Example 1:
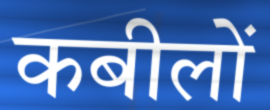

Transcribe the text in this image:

कबीलों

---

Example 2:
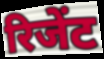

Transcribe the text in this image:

रिजेंट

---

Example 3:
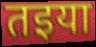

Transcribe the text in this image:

तइया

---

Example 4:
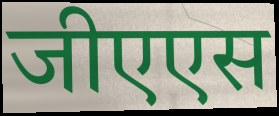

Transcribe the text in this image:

जीएएस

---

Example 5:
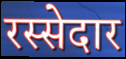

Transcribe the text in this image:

रस्सेदार